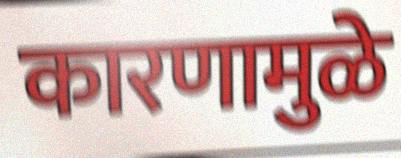
कारणामुळे